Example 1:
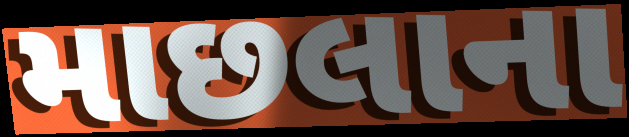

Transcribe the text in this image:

માછલાના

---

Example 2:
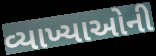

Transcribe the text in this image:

વ્યાખ્યાઓની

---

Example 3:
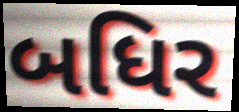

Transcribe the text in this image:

બધિર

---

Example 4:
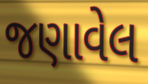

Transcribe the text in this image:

જણાવેલ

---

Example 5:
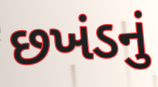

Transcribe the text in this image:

છખંડનું